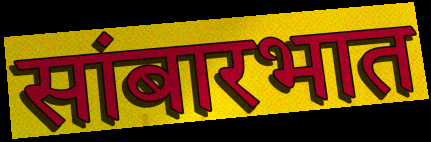
सांबारभात